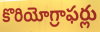
కొరియోగ్రాఫర్లు